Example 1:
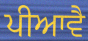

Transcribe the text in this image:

ਪੀਆਵੈ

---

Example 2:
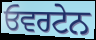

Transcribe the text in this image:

ਓਵਰਟੇਨ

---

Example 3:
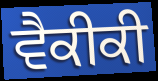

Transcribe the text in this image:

ਵੈਕੀਕੀ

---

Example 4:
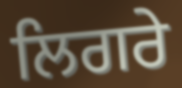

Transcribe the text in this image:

ਲਿਗਰੇ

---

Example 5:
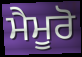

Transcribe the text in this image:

ਮੈਮੂਰੋ